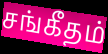
சங்கீதம்